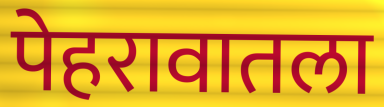
पेहरावातला